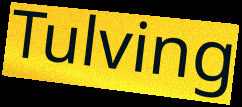
Tulving